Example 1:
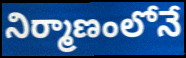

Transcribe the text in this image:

నిర్మాణంలోనే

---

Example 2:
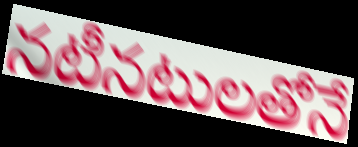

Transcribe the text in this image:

నటీనటులతోనే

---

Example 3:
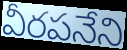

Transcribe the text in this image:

వీరపనేని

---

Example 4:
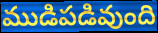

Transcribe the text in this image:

ముడిపడివుంది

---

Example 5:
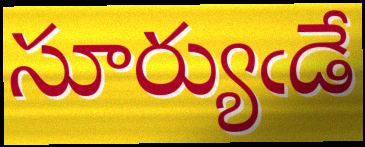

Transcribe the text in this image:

సూర్యుఁడే